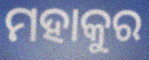
ମହାକୁର